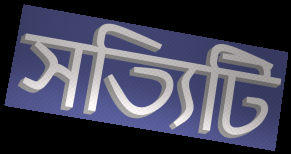
সত্যিটি